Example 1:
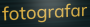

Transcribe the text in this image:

fotografar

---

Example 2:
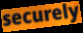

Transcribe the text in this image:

securely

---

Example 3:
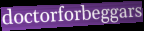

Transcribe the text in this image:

doctorforbeggars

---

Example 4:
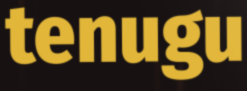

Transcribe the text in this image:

tenugu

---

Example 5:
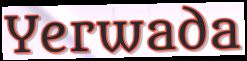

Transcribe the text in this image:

Yerwada